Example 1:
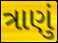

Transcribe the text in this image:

ત્રાણું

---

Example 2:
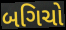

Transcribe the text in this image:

બગિચો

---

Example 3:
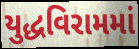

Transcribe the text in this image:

યુદ્ધવિરામમાં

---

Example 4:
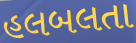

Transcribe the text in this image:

હલબલતા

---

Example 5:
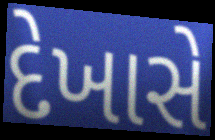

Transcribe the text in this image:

દેખાસે